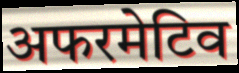
अफरमेटिव